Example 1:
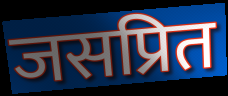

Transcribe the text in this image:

जसप्रित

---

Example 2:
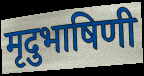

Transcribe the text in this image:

मृदुभाषिणी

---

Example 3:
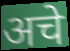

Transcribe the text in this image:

अचे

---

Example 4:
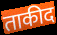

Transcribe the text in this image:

ताकीद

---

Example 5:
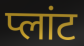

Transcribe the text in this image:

प्‍लांट